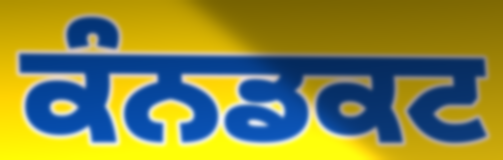
ਕੰਨਡਕਟ